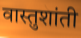
वास्तुशांती